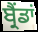
ਬ੍ਰੈਂਡਾਂ